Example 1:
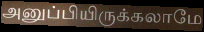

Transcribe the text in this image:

அனுப்பியிருக்கலாமே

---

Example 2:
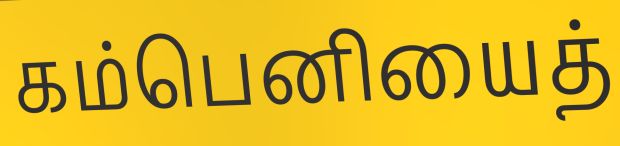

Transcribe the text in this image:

கம்பெனியைத்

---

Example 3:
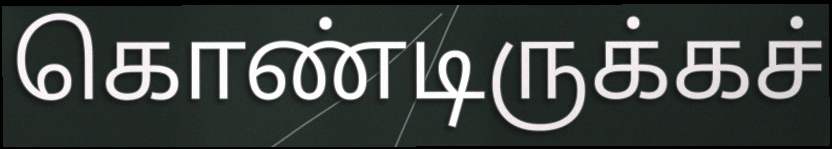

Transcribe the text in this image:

கொண்டிருக்கச்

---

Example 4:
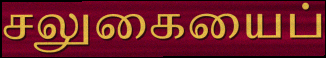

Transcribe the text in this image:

சலுகையைப்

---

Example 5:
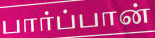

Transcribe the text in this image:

பார்ப்பான்